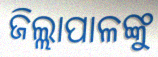
ଜିଲ୍ଲାପାଳଙ୍କୁ